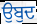
ਉਬੁਦ